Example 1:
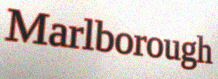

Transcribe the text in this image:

Marlborough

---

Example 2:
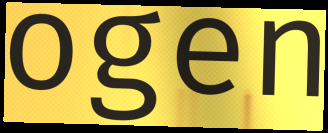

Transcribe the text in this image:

ogen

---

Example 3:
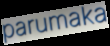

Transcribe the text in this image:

parumaka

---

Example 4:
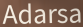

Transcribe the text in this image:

Adarsa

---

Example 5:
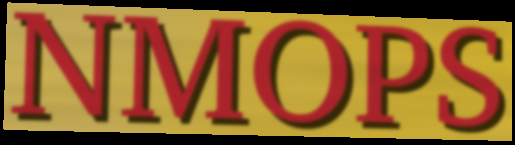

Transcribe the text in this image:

NMOPS